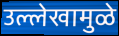
उल्लेखामुळे